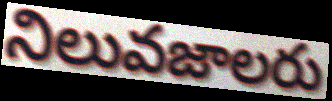
నిలువజాలరు